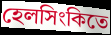
হেলসিংকিতে